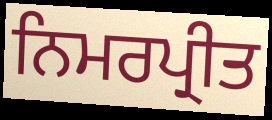
ਨਿਮਰਪ੍ਰੀਤ